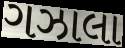
ગઝાલા